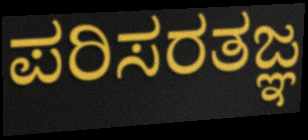
ಪರಿಸರತಜ್ಞ